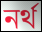
নর্থ